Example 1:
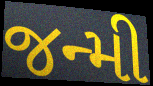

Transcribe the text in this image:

જન્મી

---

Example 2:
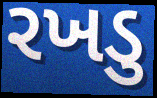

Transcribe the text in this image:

રખડુ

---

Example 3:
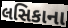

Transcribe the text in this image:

લસિકાના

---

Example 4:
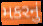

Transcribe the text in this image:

મકરનું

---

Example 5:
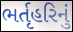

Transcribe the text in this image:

ભર્તૃહરિનું